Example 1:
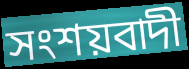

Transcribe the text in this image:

সংশয়বাদী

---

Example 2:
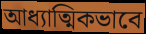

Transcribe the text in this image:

আধ্যাত্মিকভাবে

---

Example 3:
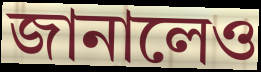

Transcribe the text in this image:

জানালেও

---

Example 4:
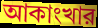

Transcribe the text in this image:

আকাংখার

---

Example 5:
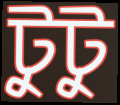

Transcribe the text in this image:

টুটু